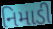
નિમાડી